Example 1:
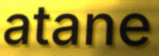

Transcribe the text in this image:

atane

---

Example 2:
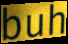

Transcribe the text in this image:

buh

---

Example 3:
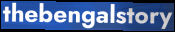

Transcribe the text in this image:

thebengalstory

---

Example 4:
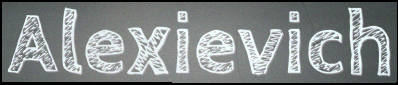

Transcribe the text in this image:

Alexievich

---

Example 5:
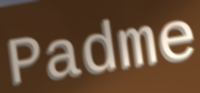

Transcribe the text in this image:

Padme